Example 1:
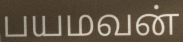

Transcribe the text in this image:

பயமவன்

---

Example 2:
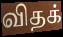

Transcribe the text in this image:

விதக்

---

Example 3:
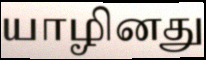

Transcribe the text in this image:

யாழினது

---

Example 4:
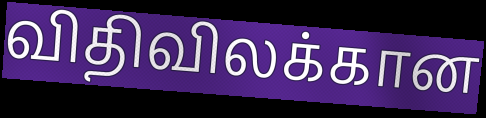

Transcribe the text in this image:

விதிவிலக்கான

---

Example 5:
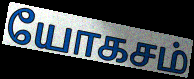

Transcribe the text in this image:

யோகசம்